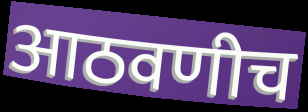
आठवणीच